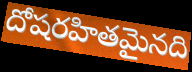
దోషరహితమైనది